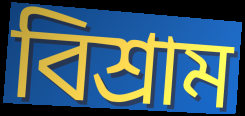
বিশ্ৰাম